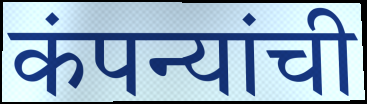
कंपन्यांची